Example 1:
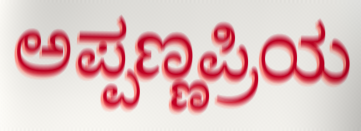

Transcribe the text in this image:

ಅಪ್ಪಣ್ಣಪ್ರಿಯ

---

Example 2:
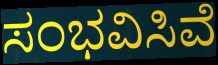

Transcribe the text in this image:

ಸಂಭವಿಸಿವೆ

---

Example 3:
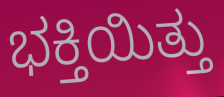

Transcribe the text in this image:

ಭಕ್ತಿಯಿತ್ತು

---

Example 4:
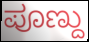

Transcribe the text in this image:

ಪೂಣ್ದು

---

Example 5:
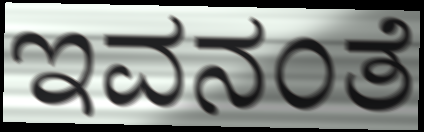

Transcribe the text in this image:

ಇವನಂತೆ